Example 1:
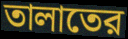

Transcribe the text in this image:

তালাতের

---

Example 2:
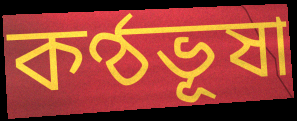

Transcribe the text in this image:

কণ্ঠভূষা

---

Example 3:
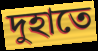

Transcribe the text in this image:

দুহাতে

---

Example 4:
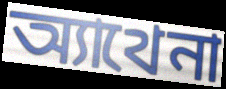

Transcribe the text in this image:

অ্যাথেনা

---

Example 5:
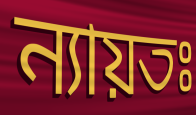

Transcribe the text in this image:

ন্যায়তঃ